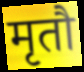
मृतौ